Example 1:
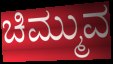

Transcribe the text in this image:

ಚಿಮ್ಮುವ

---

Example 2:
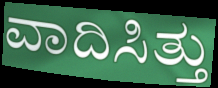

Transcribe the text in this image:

ವಾದಿಸಿತ್ತು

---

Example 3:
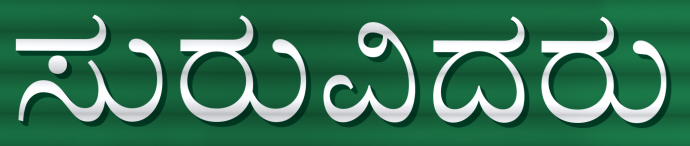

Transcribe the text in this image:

ಸುರುವಿದರು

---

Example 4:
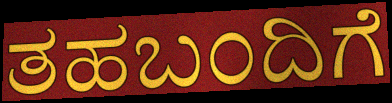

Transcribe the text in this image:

ತಹಬಂದಿಗೆ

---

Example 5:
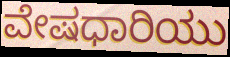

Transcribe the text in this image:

ವೇಷಧಾರಿಯು